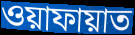
ওয়াফায়াত